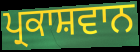
ਪ੍ਰਕਾਸ਼ਵਾਨ